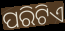
ପରିଟିଏ